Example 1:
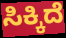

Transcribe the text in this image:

ಸಿಕ್ಕಿದೆ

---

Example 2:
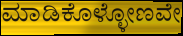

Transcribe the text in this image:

ಮಾಡಿಕೊಳ್ಳೋಣವೇ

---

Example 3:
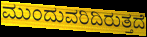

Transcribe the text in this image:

ಮುಂದುವರಿದಿರುತ್ತದೆ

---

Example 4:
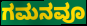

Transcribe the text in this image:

ಗಮನವೂ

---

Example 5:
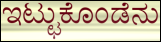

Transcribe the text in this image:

ಇಟ್ಟುಕೊಂಡೆನು